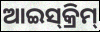
ଆଇସ୍‍କ୍ରିମ୍